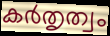
കർതൃത്വം